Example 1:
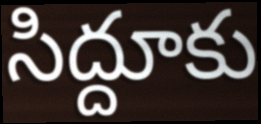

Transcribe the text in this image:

సిద్దూకు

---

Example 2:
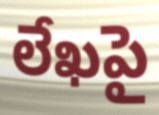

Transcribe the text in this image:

లేఖపై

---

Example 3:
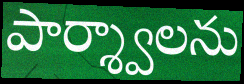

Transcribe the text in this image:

పార్శ్వాలను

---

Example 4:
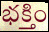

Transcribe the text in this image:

భక్తిం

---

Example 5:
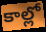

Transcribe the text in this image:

కాల్లో